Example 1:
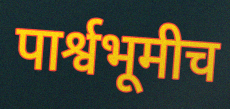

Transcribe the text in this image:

पार्श्वभूमीच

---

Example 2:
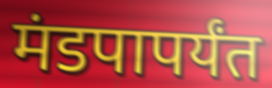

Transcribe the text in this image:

मंडपापर्यंत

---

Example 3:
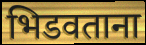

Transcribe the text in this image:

भिडवताना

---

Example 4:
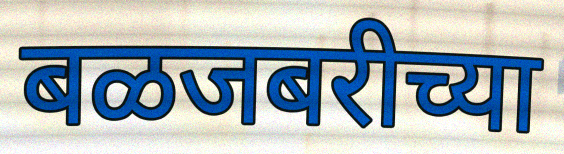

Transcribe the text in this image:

बळजबरीच्या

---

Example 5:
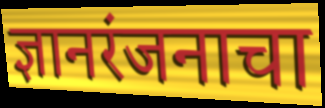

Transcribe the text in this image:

ज्ञानरंजनाचा